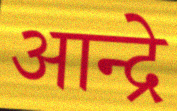
आन्द्रे